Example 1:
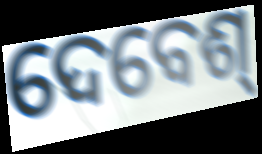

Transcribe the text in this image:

ଦେବେଶ୍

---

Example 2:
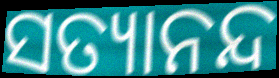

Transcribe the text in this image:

ସତ୍ୟାନନ୍ଦ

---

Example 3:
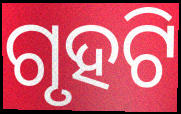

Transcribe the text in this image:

ଗୃହଟି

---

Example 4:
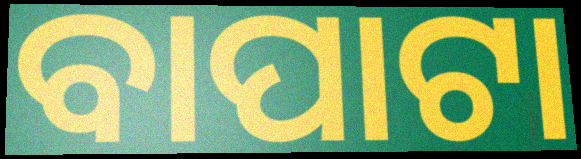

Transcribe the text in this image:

ବାପାଟା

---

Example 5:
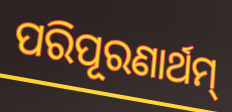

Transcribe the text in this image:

ପରିପୂରଣାର୍ଥମ୍